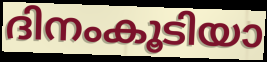
ദിനംകൂടിയാ